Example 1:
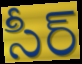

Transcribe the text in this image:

సీర్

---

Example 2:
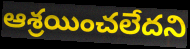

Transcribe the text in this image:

ఆశ్రయించలేదని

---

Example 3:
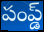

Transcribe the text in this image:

పంప్డ్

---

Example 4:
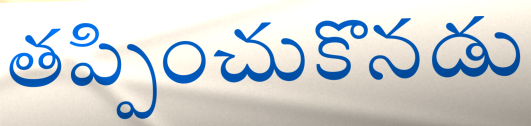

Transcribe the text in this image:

తప్పించుకొనడు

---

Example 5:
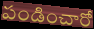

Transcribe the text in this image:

పండించారో